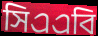
সিএএবি